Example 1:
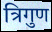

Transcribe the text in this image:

त्रिगुण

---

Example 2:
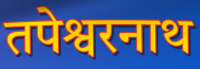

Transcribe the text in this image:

तपेश्वरनाथ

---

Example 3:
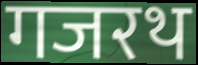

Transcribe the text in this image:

गजरथ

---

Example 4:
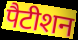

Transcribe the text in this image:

पैटीशन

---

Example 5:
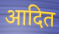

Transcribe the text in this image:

आदित